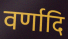
वर्णादि